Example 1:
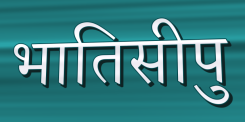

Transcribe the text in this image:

भातिसीपु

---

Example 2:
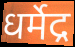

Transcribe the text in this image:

धर्मेद्र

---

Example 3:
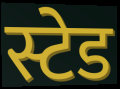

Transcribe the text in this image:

स्टेड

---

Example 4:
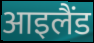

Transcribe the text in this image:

आइलैंड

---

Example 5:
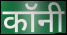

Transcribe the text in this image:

कॉनी